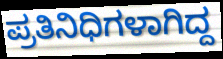
ಪ್ರತಿನಿಧಿಗಳಾಗಿದ್ದ